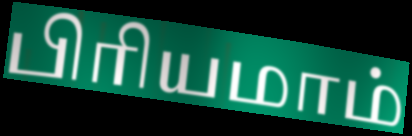
பிரியமாம்